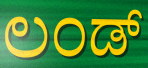
ಲಂಡ್